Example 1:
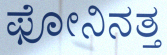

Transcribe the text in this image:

ಫೋನಿನತ್ತ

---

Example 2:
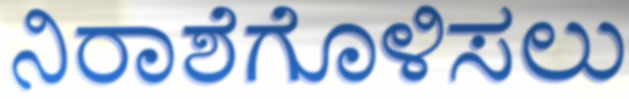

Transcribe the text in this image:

ನಿರಾಶೆಗೊಳಿಸಲು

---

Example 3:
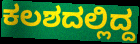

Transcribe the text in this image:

ಕಲಶದಲ್ಲಿದ್ದ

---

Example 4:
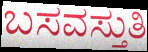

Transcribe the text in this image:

ಬಸವಸ್ತುತಿ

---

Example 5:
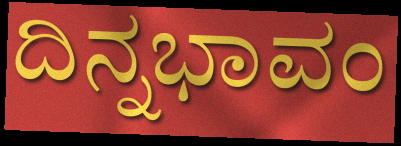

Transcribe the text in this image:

ದಿನ್ನಭಾವಂ